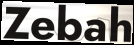
Zebah